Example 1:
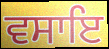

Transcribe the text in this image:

ਵਸਾਇ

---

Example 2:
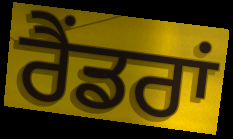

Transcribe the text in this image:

ਰੈਂਡਰਾਂ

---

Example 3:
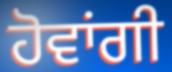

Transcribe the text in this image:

ਹੋਵਾਂਗੀ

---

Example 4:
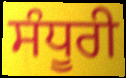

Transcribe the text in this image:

ਸੰਧੂਰੀ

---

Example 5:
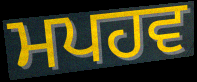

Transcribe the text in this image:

ਮਪਹਵ